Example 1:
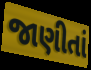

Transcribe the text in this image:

જાણીતાં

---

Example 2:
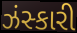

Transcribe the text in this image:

ઝંસ્કારી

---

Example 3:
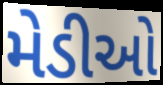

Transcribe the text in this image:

મેડીઓ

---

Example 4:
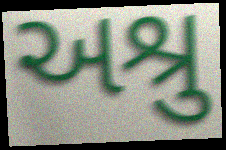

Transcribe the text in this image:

અશ્રુ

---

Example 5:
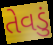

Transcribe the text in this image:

તેવડું